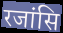
रजांसि